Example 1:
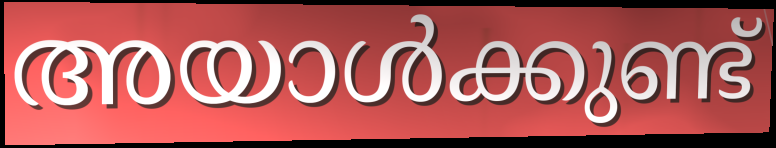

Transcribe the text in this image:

അയാൾക്കുണ്ട്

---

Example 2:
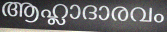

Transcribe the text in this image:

ആഹ്ലാദാരവം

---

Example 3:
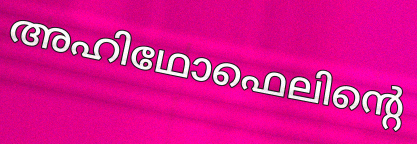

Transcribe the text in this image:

അഹിഥോഫെലിന്റെ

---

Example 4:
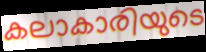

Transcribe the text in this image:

കലാകാരിയുടെ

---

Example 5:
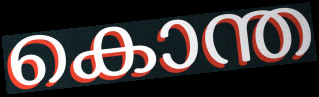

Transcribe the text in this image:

കൊന്ത